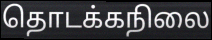
தொடக்கநிலை